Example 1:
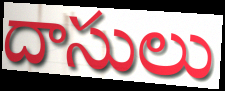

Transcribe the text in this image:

దాసులు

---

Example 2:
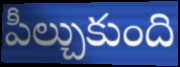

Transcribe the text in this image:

పీల్చుకుంది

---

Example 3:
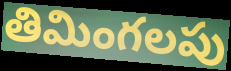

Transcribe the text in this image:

తిమింగలపు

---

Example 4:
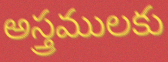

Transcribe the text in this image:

అస్త్రములకు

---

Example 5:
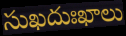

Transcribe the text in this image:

సుఖదుఃఖాలు